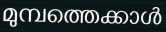
മുമ്പത്തെക്കാൾ